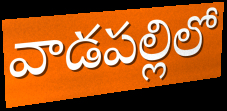
వాడపల్లిలో